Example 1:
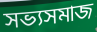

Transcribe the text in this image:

সভ্যসমাজ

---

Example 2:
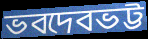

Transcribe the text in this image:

ভবদেবভট্ট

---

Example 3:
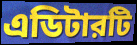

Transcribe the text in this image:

এডিটারটি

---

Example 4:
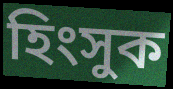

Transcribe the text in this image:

হিংসুক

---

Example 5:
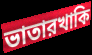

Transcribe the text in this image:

ভাতারখাকি